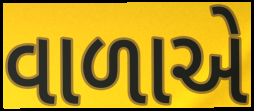
વાળાએ